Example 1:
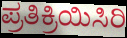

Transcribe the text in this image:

ಪ್ರತಿಕ್ರಿಯಿಸಿರಿ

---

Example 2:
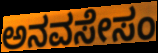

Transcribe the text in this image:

ಅನವಸೇಸಂ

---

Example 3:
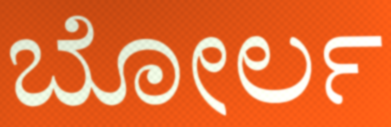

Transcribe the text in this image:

ಬೋರ್ಲ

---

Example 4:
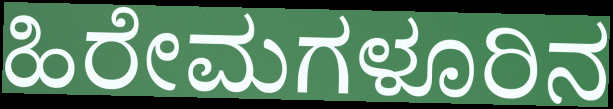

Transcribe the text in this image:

ಹಿರೇಮಗಳೂರಿನ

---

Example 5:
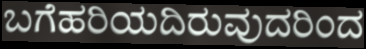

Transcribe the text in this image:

ಬಗೆಹರಿಯದಿರುವುದರಿಂದ